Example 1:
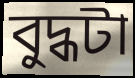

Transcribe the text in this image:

বুদ্ধটা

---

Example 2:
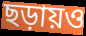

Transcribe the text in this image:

ছড়ায়ও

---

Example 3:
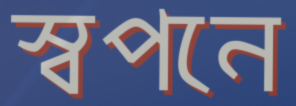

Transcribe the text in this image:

স্বপনে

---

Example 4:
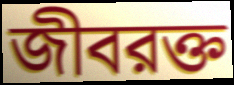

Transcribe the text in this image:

জীবরক্ত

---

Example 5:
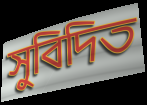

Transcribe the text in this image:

সুবিদিত